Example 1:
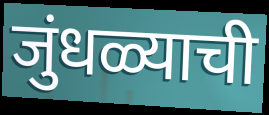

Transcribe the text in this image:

जुंधळ्याची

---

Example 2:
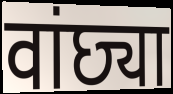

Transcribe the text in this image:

वांछ्या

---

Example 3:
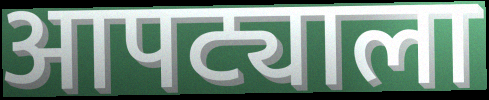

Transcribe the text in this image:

आपट्याला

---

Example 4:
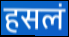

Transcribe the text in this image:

हसलं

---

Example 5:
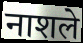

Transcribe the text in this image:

नाशले